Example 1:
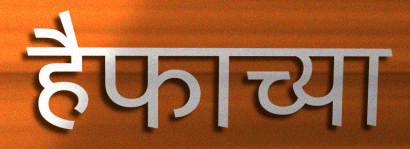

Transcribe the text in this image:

हैफाच्या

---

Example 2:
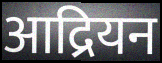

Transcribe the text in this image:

आद्रियन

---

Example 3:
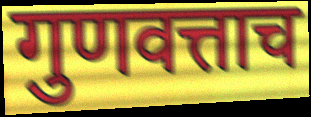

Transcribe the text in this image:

गुणवत्ताच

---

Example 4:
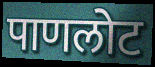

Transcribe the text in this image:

पाणलोट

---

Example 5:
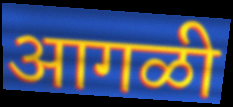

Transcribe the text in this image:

आगळी